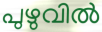
പുഴുവിൽ